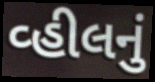
વ્હીલનું